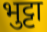
भुट्टा